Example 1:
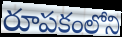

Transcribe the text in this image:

రూపకంలోని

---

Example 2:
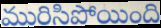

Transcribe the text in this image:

మురిసిపోయింది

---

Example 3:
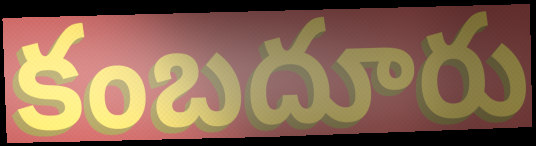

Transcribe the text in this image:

కంబదూరు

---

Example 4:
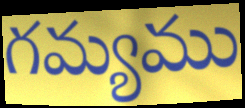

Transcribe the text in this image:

గమ్యము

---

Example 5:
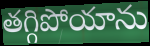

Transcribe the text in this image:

తగ్గిపోయాను